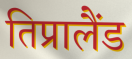
तिप्रालैंड